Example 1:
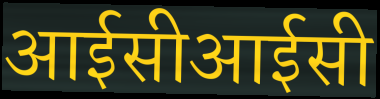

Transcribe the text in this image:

आईसीआईसी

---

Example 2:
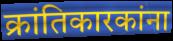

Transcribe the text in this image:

क्रांतिकारकांना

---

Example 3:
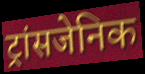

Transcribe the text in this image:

ट्रांसजेनिक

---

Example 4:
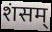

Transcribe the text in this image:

शंसम्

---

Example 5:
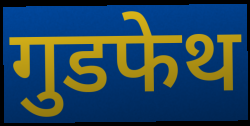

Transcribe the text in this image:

गुडफेथ